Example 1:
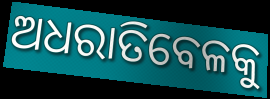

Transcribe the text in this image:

ଅଧରାତିବେଳକୁ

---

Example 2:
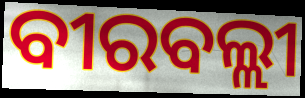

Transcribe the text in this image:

ବୀରବଲ୍ଲୀ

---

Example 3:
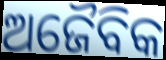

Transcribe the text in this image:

ଅଜୈବିକ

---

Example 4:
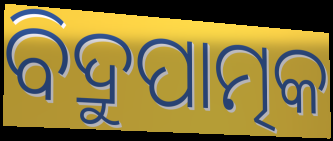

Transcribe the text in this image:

ବିଦ୍ରୁପାତ୍ମକ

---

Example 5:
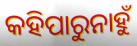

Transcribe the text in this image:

କହିପାରୁନାହୁଁ